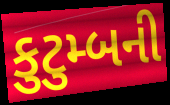
કુટુમ્બની